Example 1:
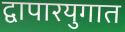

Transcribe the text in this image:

द्वापारयुगात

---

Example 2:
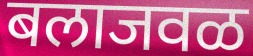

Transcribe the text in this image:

बलाजवळ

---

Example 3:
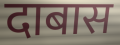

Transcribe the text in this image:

दाबास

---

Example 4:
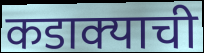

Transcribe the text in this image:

कडाक्याची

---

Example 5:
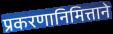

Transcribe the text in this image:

प्रकरणानिमित्ताने